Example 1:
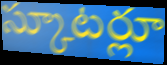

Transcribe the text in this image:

స్కూటర్లూ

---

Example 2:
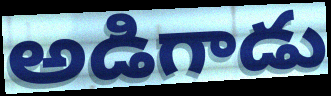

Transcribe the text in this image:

అడిగాడు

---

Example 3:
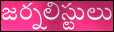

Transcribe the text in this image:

జర్నలిస్టులు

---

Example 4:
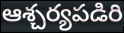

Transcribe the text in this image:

ఆశ్చర్యపడిరి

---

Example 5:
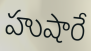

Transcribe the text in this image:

హుషారే